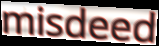
misdeed